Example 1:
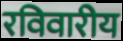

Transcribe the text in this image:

रविवारीय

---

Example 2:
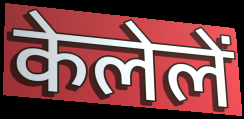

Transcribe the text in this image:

केलेलें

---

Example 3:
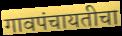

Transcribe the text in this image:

गावपंचायतीचा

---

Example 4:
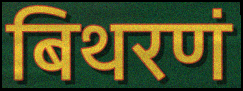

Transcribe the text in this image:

बिथरणं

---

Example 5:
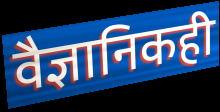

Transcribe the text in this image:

वैज्ञानिकही